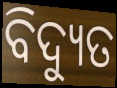
ବିଦ୍ଯୁତ